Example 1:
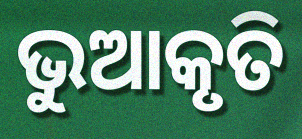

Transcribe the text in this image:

ଭୁଆକୃତି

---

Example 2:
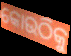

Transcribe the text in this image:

କୋଉଠିକୁ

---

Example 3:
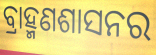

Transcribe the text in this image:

ବ୍ରାହ୍ମଣଶାସନର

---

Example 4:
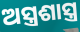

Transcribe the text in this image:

ଅସ୍ତ୍ରଶାସ୍ତ୍ର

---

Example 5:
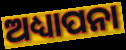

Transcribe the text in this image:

ଅଧ୍ୟାପନା